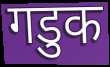
गडुक